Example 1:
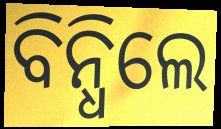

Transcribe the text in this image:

ବିନ୍ଧିଲେ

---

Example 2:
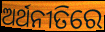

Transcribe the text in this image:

ଅର୍ଥନୀତିରେ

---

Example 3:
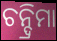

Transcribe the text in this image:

ଚନ୍ଦ୍ରିମା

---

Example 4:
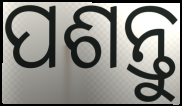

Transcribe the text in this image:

ପଶନ୍ତୁ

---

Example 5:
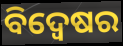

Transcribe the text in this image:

ବିଦ୍ୱେଷର